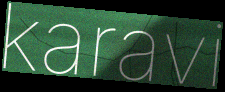
karavi